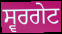
ਸ੍ਵਰਗੇਟ